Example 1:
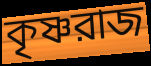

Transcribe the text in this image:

কৃষ্ণরাজ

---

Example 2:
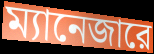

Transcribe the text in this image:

ম্যানেজারে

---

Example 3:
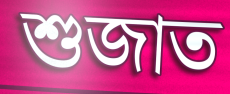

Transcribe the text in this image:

শুজাত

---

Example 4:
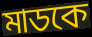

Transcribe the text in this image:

মাডকে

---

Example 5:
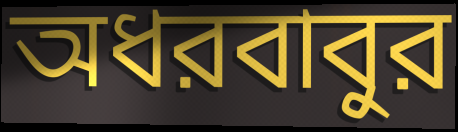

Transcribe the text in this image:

অধরবাবুর